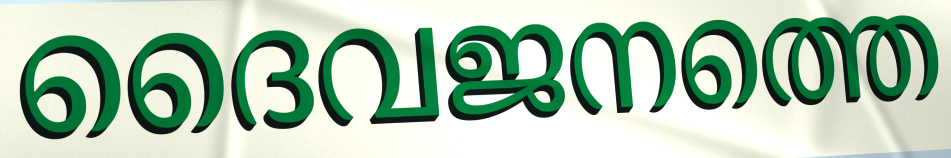
ദൈവജനത്തെ